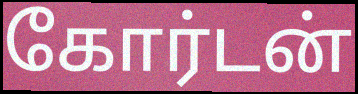
கோர்டன்